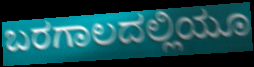
ಬರಗಾಲದಲ್ಲಿಯೂ